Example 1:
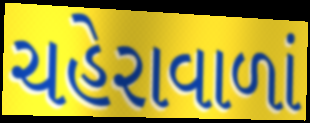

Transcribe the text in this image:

ચહેરાવાળાં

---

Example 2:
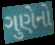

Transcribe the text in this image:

ગુણેનો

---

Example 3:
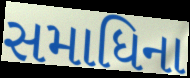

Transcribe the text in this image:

સમાધિના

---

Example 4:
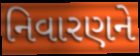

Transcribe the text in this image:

નિવારણને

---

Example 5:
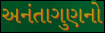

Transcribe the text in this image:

અનંતાગુણનો